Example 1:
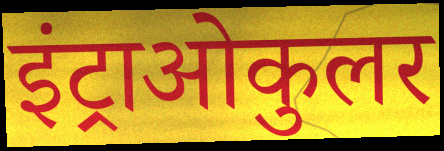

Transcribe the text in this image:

इंट्राओकुलर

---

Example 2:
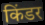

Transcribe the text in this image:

किंडर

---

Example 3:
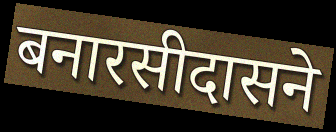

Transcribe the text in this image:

बनारसीदासने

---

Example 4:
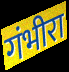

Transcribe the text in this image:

गंभीरा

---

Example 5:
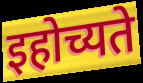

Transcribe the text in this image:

इहोच्यते